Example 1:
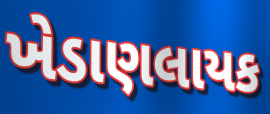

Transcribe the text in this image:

ખેડાણલાયક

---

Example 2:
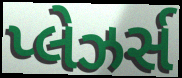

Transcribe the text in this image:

પ્લેઝર્સ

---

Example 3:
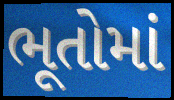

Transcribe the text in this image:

ભૂતોમાં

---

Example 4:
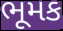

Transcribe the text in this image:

ભૂમક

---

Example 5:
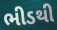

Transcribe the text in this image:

ભીડથી